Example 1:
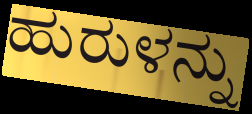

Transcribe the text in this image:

ಹುರುಳನ್ನು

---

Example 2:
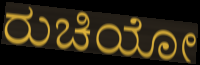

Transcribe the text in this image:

ರುಚಿಯೋ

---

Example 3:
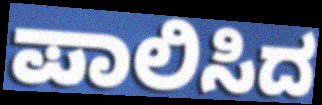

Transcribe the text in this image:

ಪಾಲಿಸಿದ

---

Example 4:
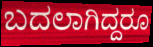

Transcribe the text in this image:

ಬದಲಾಗಿದ್ದರೂ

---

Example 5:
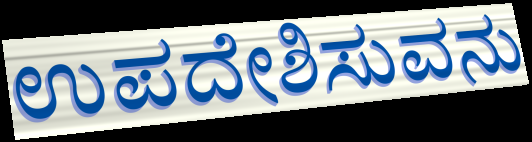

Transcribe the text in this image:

ಉಪದೇಶಿಸುವನು